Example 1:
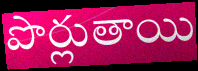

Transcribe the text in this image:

పొర్లుతాయి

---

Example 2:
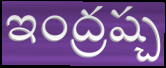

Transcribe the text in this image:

ఇంద్రష్చ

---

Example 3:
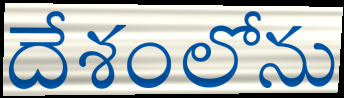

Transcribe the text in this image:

దేశంలోను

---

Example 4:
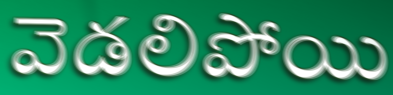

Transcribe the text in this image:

వెడలిపోయి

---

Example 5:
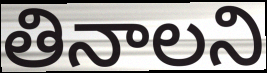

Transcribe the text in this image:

తినాలని